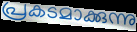
പ്രകടമാക്കുന്നു